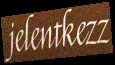
jelentkezz